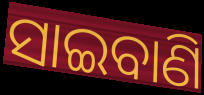
ସାଇବାଣି